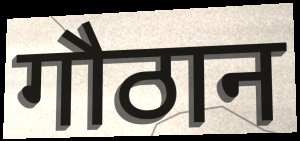
गौठान